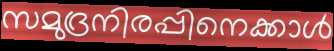
സമുദ്രനിരപ്പിനെക്കാൾ